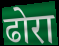
ढोरा